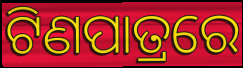
ଟିଣପାତ୍ରରେ